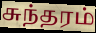
சுந்தரம்